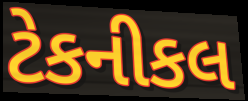
ટેકનીકલ